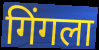
गिंगला